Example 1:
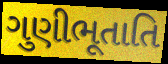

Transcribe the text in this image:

ગુણીભૂતાતિ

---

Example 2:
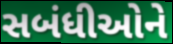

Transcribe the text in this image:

સબંધીઓને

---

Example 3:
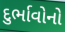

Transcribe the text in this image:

દુર્ભાવોનો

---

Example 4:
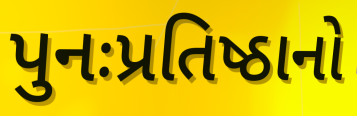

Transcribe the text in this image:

પુનઃપ્રતિષ્ઠાનો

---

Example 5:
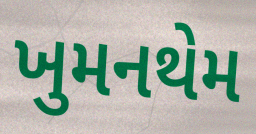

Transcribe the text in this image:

ખુમનથેમ